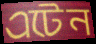
এটেন